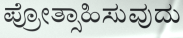
ಪ್ರೋತ್ಸಾಹಿಸುವುದು